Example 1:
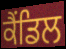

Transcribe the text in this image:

ਕੈਂਡਿਲ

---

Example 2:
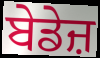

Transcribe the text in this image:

ਬੇਡੇਜ਼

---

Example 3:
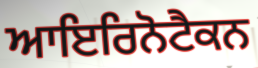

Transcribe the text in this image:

ਆਇਰਿਨੋਟੈਕਨ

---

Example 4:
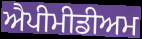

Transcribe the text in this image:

ਐਪੀਮੀਡੀਅਮ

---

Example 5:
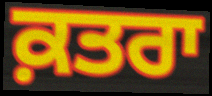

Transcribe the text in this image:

ਕ਼ਤਰਾ